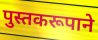
पुस्तकरूपाने